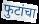
फुटांचा